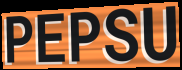
PEPSU